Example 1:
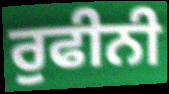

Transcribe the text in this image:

ਰੁਫੀਨੀ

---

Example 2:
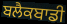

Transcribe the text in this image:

ਬਲੈਕਬਾਡੀ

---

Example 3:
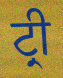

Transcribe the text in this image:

ਟ੍ਰੀ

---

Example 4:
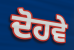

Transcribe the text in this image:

ਦੋਹਵੇ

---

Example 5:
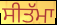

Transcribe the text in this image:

ਸੀਤੱਮਾ